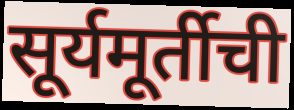
सूर्यमूर्तीची